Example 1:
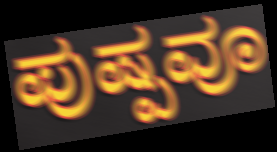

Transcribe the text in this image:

ಪುಷ್ಪವೂ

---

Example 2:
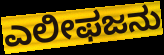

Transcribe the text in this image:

ಎಲೀಫಜನು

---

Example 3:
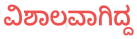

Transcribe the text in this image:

ವಿಶಾಲವಾಗಿದ್ದ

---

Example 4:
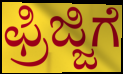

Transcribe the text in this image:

ಫ್ರಿಜ್ಜಿಗೆ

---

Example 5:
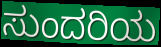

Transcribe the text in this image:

ಸುಂದರಿಯ